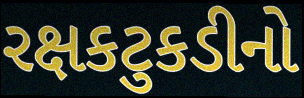
રક્ષકટુકડીનો